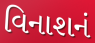
વિનાશનં